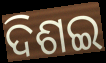
ଦିଶଇ